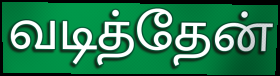
வடித்தேன்